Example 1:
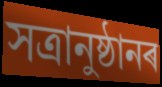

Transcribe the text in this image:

সত্ৰানুষ্ঠানৰ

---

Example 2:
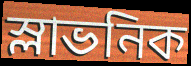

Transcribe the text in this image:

স্লাভনিক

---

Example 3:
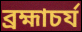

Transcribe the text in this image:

ব্ৰহ্মাচৰ্য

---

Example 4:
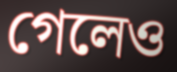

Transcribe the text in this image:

গেলেও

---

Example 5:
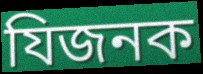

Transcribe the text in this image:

যিজনক